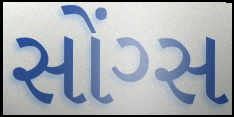
સોંગ્સ